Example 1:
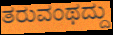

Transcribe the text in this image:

ತರುವಂಥದ್ದು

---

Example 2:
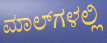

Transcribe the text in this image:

ಮಾಲ್‌ಗಳಲ್ಲಿ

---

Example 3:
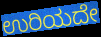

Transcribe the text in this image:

ಉರಿಯದೇ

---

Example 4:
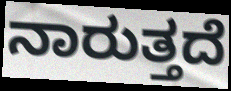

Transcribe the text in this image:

ನಾರುತ್ತದೆ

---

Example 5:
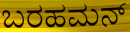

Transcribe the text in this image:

ಬರಹಮನ್